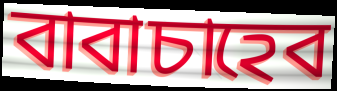
বাবাচাহেব